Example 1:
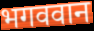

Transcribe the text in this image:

भगववान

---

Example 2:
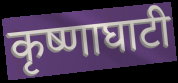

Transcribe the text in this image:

कृष्णाघाटी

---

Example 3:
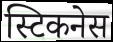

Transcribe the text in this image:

स्टिकनेस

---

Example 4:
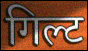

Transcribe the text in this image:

गिल्ट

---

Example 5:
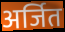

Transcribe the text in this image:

अर्जित